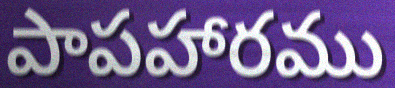
పాపహారము